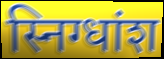
स्निग्धांश